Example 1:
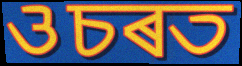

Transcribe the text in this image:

ওচৰত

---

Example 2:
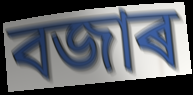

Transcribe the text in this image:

বজাৰ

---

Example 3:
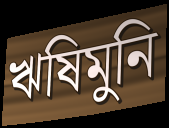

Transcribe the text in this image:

ঋষিমুনি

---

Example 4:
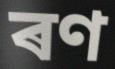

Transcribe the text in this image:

ৰণ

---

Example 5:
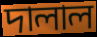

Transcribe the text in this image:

দালাল